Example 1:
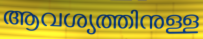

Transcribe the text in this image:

ആവശ്യത്തിനുള്ള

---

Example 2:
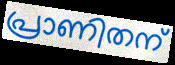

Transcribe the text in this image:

പ്രാണിതന്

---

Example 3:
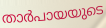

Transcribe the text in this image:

താർപായയുടെ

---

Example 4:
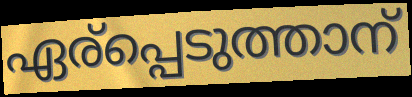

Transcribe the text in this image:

ഏര്പ്പെടുത്താന്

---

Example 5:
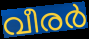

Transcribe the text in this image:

വീരർ